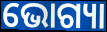
ଭୋଗ୍ୟା